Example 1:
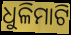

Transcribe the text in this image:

ଧୁଳିମାଟି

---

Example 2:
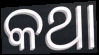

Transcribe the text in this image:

କଥା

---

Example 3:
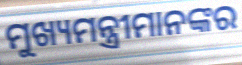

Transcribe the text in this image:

ମୁଖ୍ୟମନ୍ତ୍ରୀମାନଙ୍କର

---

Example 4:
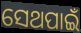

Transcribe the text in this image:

ସେଥପାଇଁ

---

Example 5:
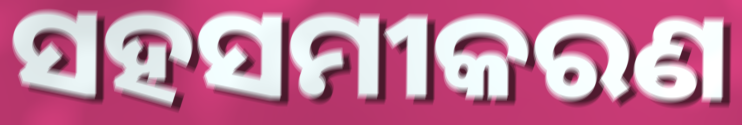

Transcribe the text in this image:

ସହସମୀକରଣ